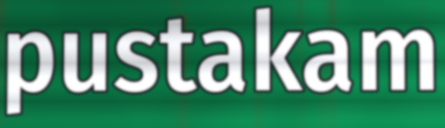
pustakam